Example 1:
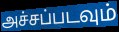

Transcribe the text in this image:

அச்சப்படவும்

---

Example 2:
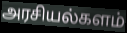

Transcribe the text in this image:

அரசியல்களம்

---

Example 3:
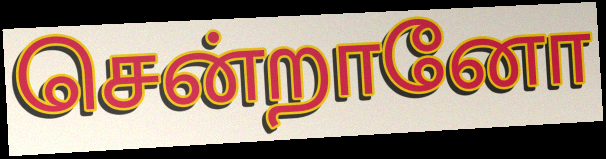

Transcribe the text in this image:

சென்றானோ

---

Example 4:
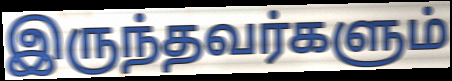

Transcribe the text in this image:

இருந்தவர்களும்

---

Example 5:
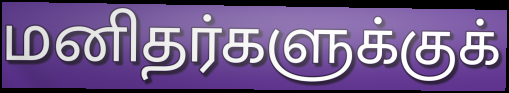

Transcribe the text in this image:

மனிதர்களுக்குக்